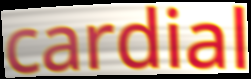
cardial